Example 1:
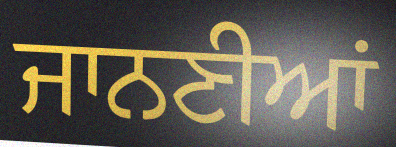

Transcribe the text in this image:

ਜਾਨਣੀਆਂ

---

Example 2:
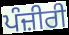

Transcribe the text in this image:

ਪੰਜ਼ੀਰੀ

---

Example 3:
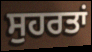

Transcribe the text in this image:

ਸੁਹਰਤਾਂ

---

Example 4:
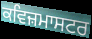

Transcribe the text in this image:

ਕਵਿਜ਼ਮਾਸਟਰ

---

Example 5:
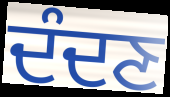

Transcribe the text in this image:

ਦੰਦਣ